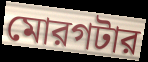
মোরগটার